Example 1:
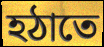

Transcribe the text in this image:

হঠাতে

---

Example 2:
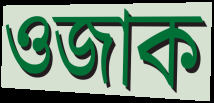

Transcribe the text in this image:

ওজাক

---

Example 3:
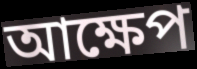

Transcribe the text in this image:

আক্ষেপ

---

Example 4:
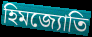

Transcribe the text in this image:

হিমজ্যোতি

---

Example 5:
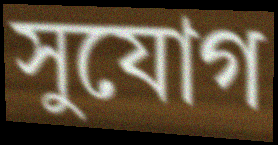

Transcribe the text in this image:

সুযোগ